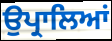
ਉਪ੍ਰਾਲਿਆਂ